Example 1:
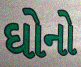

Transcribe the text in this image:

ઘોનો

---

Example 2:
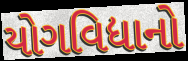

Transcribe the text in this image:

યોગવિદ્યાનો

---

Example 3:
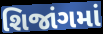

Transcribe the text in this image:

શિજાંગમાં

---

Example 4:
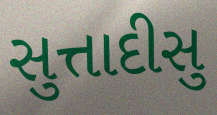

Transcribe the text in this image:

સુત્તાદીસુ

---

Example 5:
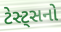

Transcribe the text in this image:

ટેસ્ટ્સનો